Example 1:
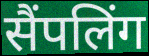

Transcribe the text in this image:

सैंपलिंग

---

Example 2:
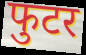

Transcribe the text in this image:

फुटर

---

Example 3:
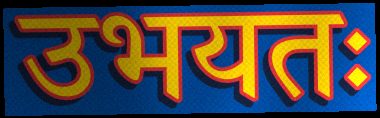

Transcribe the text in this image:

उभयतः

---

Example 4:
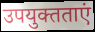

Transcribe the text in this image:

उपयुक्तताएं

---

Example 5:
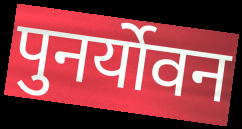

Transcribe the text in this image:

पुनर्योवन